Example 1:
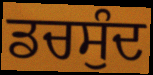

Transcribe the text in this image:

ਡਚਸੁੰਦ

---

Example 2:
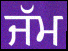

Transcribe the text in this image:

ਜੱਮ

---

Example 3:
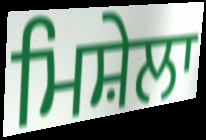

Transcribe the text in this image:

ਮਿਸ਼ੇਲਾ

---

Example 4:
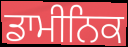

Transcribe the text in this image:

ਡਾਮੀਨਿਕ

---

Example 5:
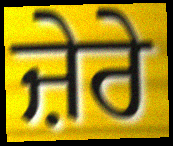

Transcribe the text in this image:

ਜ਼ੇਰੇ